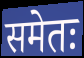
समेतः